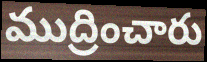
ముద్రించారు